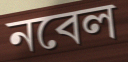
নবেল